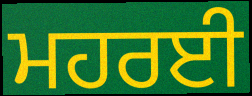
ਮਹਰਈ